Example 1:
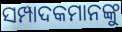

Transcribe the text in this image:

ସମ୍ପାଦକମାନଙ୍କୁ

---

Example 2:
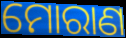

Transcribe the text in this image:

ମୋରାଣ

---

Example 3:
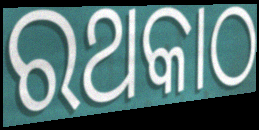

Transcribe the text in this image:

ରଥକାଠ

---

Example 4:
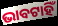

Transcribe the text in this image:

ଭାବଟାହିଁ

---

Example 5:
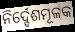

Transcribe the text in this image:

ନିର୍ଦ୍ଦେଶମୂଳକ